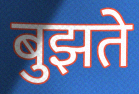
बुझते